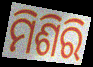
ମିଶିରି